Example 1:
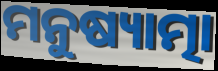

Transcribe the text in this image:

ମନୁଷ୍ୟାତ୍ମା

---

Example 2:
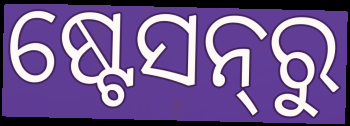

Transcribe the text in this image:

ଷ୍ଟେସନ୍‌ରୁ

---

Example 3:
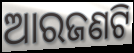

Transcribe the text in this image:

ଆରଜଣଟି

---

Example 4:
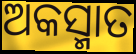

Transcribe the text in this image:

ଅକସ୍ମାତ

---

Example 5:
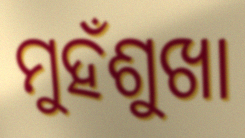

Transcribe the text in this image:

ମୁହଁଶୁଖା